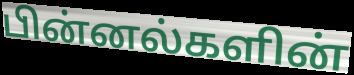
பின்னல்களின்